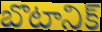
బొటానిక్